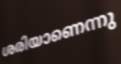
ശരിയാണെന്നു